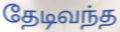
தேடிவந்த